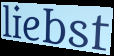
liebst